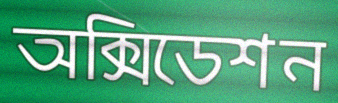
অক্সিডেশন